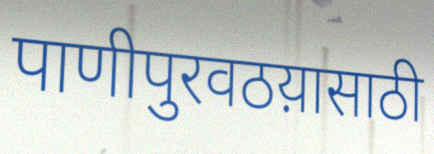
पाणीपुरवठय़ासाठी